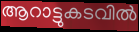
ആറാട്ടുകടവിൽ